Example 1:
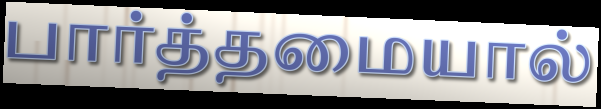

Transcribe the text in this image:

பார்த்தமையால்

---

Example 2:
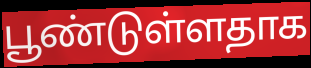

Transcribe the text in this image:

பூண்டுள்ளதாக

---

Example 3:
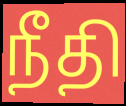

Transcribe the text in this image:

நீதி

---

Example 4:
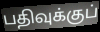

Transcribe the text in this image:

பதிவுக்குப்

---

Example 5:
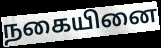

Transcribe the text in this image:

நகையினை